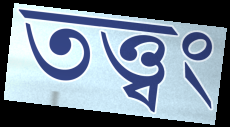
তত্ত্বং